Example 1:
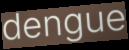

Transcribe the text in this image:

dengue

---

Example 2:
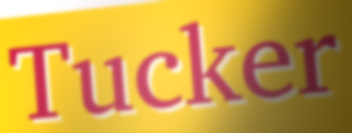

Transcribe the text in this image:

Tucker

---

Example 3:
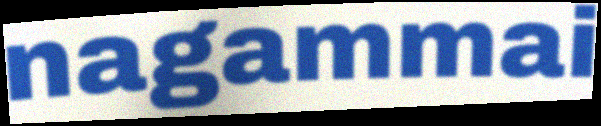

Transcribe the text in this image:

nagammai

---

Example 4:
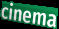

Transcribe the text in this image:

cinema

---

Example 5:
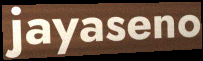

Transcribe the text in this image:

jayaseno